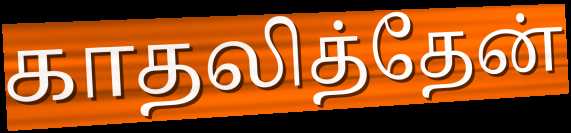
காதலித்தேன்